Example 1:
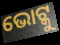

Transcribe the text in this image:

ଭୋଟ୍କୁ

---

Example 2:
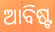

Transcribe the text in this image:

ଆବିଷ୍ଟ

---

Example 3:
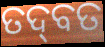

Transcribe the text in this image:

ତଦ୍‌ବତ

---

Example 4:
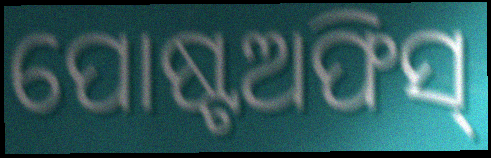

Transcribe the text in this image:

ପୋଷ୍ଟଅଫିସ୍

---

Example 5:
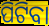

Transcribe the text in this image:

ପିଟିବା